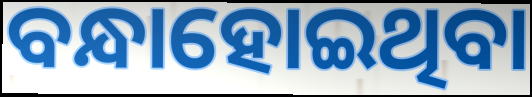
ବନ୍ଧାହୋଇଥିବା